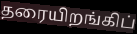
தரையிறங்கிப்